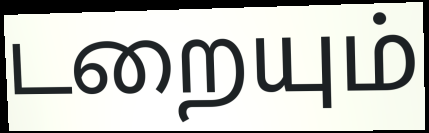
டறையும்